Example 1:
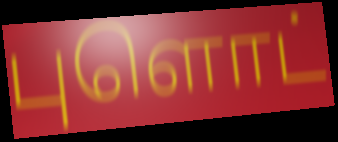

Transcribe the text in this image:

புளொட்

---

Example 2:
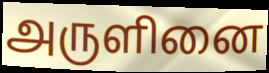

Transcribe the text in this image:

அருளினை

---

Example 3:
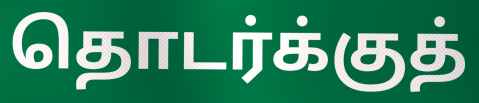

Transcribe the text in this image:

தொடர்க்குத்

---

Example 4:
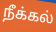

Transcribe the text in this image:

நீக்கல்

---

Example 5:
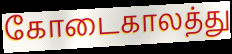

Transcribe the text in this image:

கோடைகாலத்து